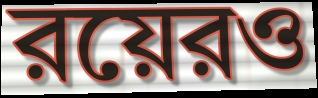
রয়েরও